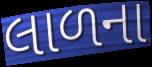
લાળના